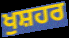
ਖੁਸ਼ਹਰ